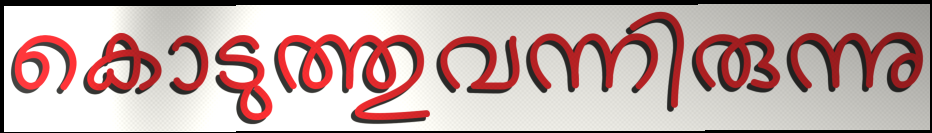
കൊടുത്തുവന്നിരുന്നു